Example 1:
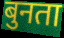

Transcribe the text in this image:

बुनता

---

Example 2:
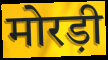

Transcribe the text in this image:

मोरड़ी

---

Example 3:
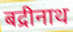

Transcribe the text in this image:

बद्रीनाथ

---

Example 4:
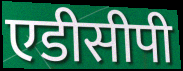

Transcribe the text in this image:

एडीसीपी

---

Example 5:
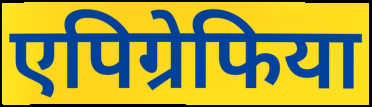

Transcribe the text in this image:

एपिग्रेफिया